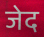
जेद